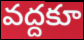
వద్దకూ